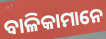
ବାଳିକାମାନେ